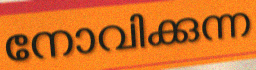
നോവിക്കുന്ന